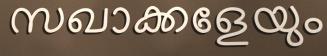
സഖാക്കളേയും